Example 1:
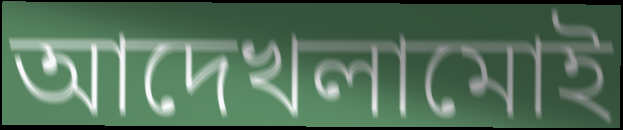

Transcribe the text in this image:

আদেখলামোই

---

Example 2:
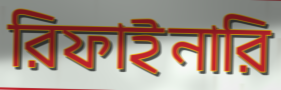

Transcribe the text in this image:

রিফাইনারি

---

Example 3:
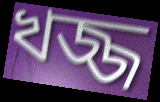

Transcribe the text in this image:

খজ্জ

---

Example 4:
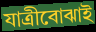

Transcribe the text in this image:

যাত্রীবোঝাই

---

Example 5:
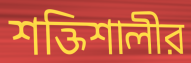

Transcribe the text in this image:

শক্তিশালীর